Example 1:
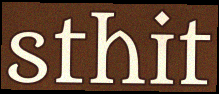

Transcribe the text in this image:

sthit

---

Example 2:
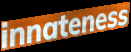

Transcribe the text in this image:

innateness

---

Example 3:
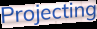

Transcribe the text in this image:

Projecting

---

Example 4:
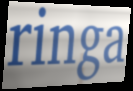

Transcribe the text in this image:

ringa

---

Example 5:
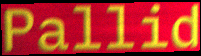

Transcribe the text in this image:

Pallid